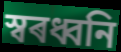
স্বৰধ্বনি